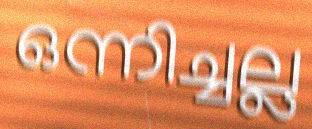
ഒന്നിച്ചല്ല